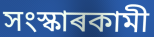
সংস্কাৰকামী